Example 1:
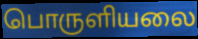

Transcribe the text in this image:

பொருளியலை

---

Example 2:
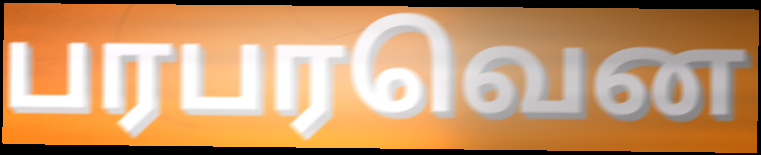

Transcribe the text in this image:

பரபரவென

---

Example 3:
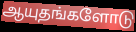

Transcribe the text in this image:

ஆயுதங்களோடு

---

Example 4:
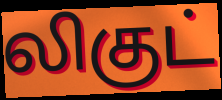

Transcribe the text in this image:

லிகுட்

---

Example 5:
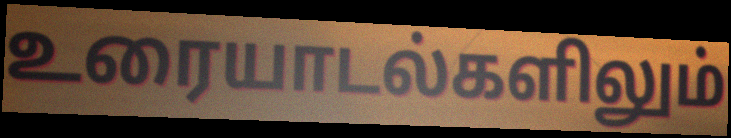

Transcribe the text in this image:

உரையாடல்களிலும்